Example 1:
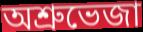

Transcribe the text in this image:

অশ্রুভেজা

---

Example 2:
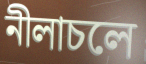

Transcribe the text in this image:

নীলাচলে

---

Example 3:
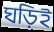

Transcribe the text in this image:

ঘড়িই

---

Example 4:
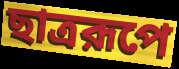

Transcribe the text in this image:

ছাত্ররূপে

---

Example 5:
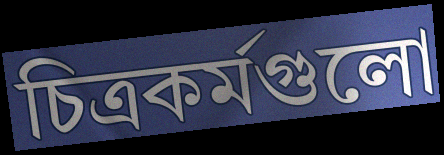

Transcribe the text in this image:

চিত্রকর্মগুলো